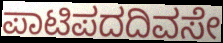
ಪಾಟಿಪದದಿವಸೇ